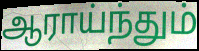
ஆராய்ந்தும்